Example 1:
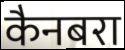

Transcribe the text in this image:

कैनबरा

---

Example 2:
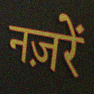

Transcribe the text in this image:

नज़रें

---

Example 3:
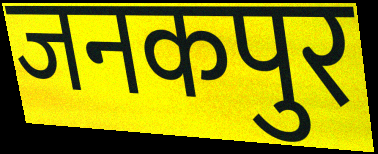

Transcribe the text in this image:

जनकपुर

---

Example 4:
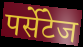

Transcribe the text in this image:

पर्सेटेज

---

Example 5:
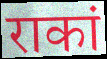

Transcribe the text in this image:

राकां